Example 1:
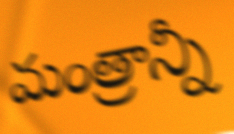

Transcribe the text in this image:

మంత్రాన్నీ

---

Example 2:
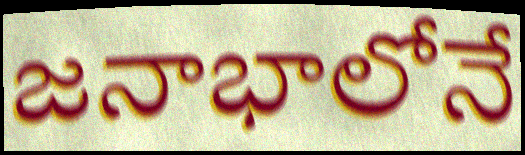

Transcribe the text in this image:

జనాభాలోనే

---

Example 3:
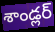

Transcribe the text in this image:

శాండ్లర్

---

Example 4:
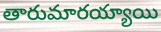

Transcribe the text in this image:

తారుమారయ్యాయి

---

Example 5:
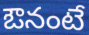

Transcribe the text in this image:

ఔనంటే